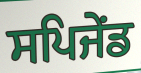
ਸਪਿਜੇਂਡ